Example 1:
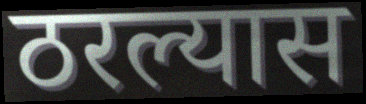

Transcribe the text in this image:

ठरल्यास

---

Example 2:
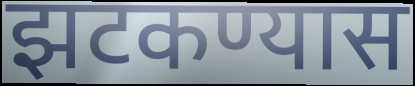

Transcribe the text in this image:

झटकण्यास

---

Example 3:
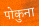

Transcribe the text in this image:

पोकुना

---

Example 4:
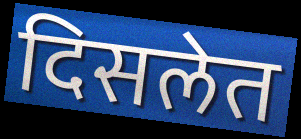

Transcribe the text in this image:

दिसलेत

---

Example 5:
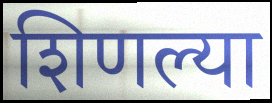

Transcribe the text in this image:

शिणल्या